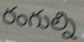
రంగుల్ని